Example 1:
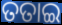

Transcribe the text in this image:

ତତାଇ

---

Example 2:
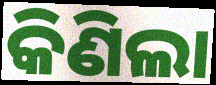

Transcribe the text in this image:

କିଣିଲା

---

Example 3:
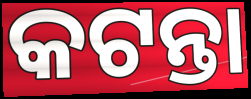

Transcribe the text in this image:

କଟନ୍ତା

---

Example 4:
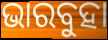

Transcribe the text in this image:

ଭାରବୁହା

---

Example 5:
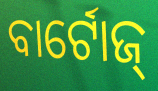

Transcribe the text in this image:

ବାର୍ଟୋଜ୍